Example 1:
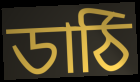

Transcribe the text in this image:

ডাঠি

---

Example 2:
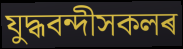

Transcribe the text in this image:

যুদ্ধবন্দীসকলৰ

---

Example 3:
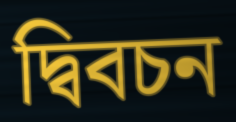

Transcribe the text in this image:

দ্বিবচন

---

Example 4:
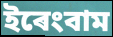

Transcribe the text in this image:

ইৰেংবাম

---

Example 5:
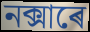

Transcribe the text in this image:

নক্সাৰে